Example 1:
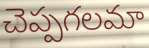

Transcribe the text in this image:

చెప్పగలమా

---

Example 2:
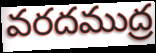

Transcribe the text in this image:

వరదముద్ర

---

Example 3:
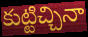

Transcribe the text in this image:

కుట్టిచ్చినా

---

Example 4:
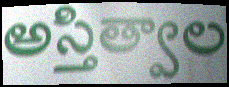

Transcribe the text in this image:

అస్తిత్వాల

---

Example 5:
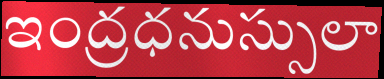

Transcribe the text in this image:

ఇంద్రధనుస్సులా